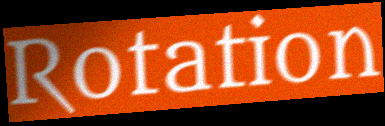
Rotation